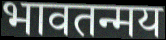
भावतन्मय